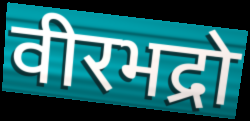
वीरभद्रो